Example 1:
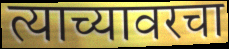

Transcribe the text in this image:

त्याच्यावरचा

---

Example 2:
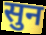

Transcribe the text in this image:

सुन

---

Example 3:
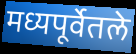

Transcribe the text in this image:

मध्यपूर्वेतले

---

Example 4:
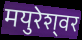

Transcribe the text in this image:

मयुरेश्वर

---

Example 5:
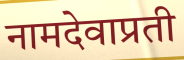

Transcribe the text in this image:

नामदेवाप्रती